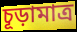
চূড়ামাত্র